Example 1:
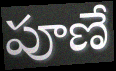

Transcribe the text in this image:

పూణే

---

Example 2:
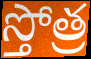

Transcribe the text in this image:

స్తోత్ర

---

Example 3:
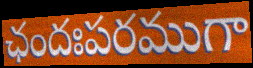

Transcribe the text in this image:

ఛందఃపరముగా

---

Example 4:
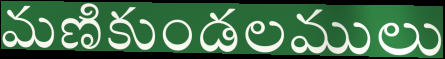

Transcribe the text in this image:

మణికుండలములు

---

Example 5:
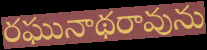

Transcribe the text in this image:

రఘునాథరావును